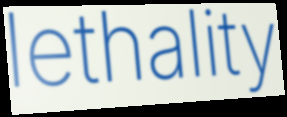
lethality